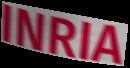
INRIA